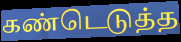
கண்டெடுத்த